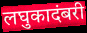
लघुकादंबरी